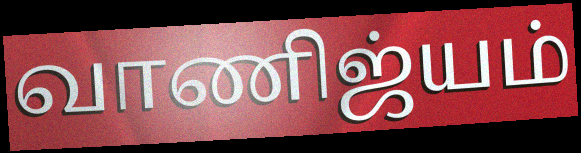
வாணிஜ்யம்